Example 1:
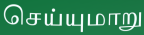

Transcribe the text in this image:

செய்யுமாறு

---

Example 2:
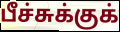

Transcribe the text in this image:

பீச்சுக்குக்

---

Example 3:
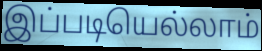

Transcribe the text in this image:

இப்படியெல்லாம்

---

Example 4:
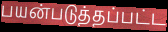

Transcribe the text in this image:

பயன்படுத்தப்பட்ட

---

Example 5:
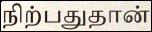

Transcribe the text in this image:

நிற்பதுதான்